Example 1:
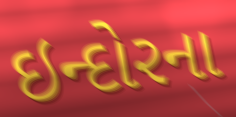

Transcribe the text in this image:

ઇન્દોરના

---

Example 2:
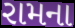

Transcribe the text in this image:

રામના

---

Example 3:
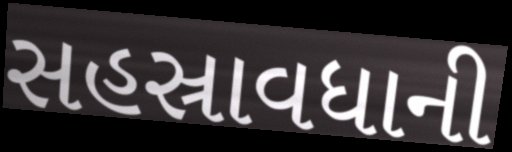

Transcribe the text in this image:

સહસ્રાવધાની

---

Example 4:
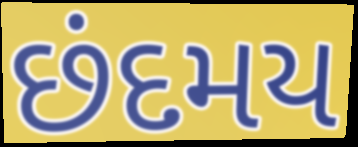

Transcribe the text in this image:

છંદમય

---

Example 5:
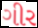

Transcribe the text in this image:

ગીર